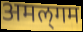
अमल्गम